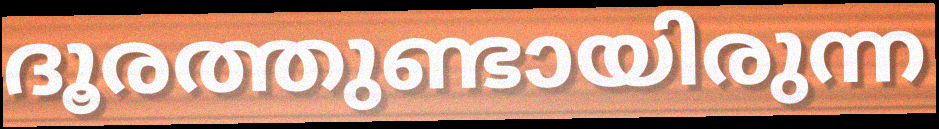
ദൂരത്തുണ്ടായിരുന്ന